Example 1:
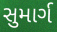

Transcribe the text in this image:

સુમાર્ગ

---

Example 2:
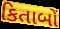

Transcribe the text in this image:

કિતાબોં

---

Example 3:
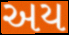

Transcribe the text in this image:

અય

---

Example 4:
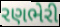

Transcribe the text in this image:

રણભેરી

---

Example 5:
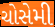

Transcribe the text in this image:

ચોસેમી